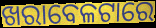
ଖରାବେଳଟାରେ